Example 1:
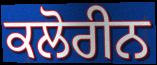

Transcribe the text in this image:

ਕਲੋਰੀਨ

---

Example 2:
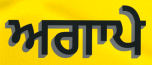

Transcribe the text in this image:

ਅਗਾਪੇ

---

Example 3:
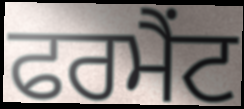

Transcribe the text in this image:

ਫਰਮੈਂਟ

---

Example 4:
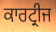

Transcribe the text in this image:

ਕਾਰਟ੍ਰੀਜ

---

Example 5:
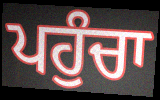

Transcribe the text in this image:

ਪਹੁੰਚਾ